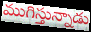
ముగిస్తున్నాడు